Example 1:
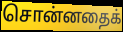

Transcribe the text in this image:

சொன்னதைக்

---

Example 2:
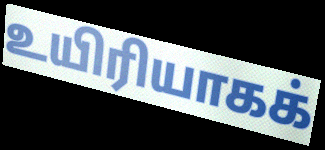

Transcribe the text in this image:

உயிரியாகக்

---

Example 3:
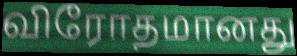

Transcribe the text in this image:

விரோதமானது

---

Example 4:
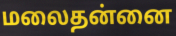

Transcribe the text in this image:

மலைதன்னை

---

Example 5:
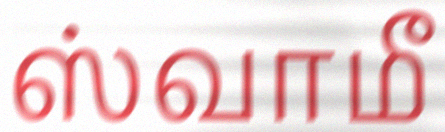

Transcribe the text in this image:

ஸ்வாமீ